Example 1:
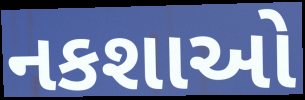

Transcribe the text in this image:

નકશાઓ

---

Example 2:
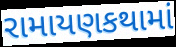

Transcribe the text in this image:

રામાયણકથામાં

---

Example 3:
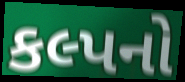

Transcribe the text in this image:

કલ્પનો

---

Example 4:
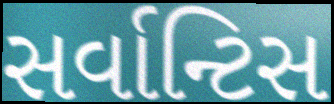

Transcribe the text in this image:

સર્વાન્ટિસ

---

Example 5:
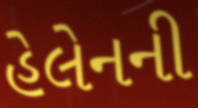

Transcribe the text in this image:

હેલેનની